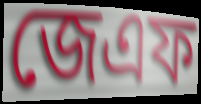
জেএফ